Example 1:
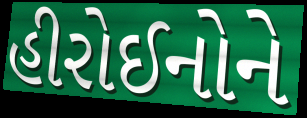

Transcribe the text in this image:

હીરોઈનોને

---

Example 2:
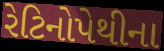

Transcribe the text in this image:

રેટિનોપેથીના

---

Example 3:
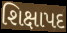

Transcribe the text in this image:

શિક્ષાપદ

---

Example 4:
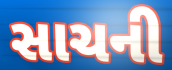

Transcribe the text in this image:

સાચની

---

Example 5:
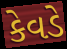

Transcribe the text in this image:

કેવડે